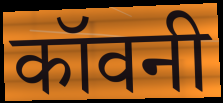
कॉवनी